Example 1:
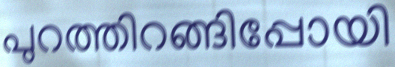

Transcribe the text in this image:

പുറത്തിറങ്ങിപ്പോയി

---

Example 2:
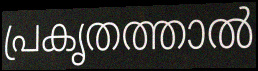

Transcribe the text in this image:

പ്രകൃതത്താൽ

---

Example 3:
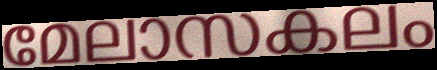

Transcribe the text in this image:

മേലാസകലം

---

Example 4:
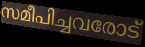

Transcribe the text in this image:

സമീപിച്ചവരോട്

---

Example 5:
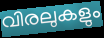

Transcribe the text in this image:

വിരലുകളും